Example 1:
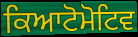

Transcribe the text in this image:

ਕਿਆਟੋਮੋਟਿਵ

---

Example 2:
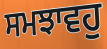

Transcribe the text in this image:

ਸਮਝਾਵਹੁ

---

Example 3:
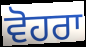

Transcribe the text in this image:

ਵੋਹਰਾ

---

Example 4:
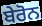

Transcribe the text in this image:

ਬੇਰੋਨ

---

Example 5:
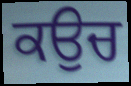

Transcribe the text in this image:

ਕਉਚ